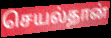
செயல்தான்